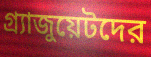
গ্র্যাজুয়েটদের